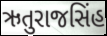
ઋતુરાજસિંહ